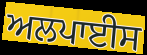
ਅਲਪਾਈਸ